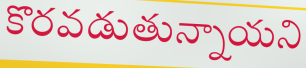
కొరవడుతున్నాయని